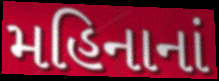
મહિનાનાં